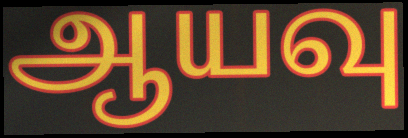
ஆயவு